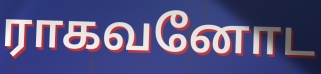
ராகவனோட